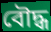
বৌদ্ধ